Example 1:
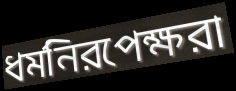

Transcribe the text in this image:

ধর্মনিরপেক্ষরা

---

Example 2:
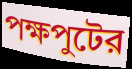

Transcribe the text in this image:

পক্ষপুটের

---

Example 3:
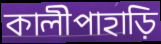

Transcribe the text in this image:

কালীপাহাড়ি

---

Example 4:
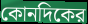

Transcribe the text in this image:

কোনদিকের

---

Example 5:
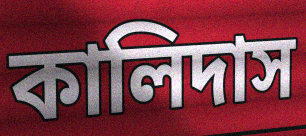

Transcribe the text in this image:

কালিদাস